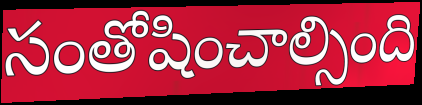
సంతోషించాల్సింది